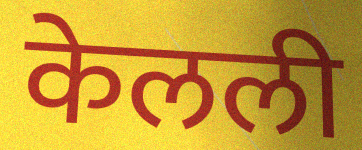
केलली